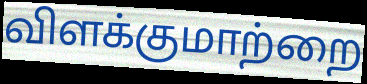
விளக்குமாற்றை